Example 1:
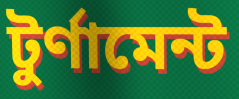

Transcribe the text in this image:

টুর্ণামেন্ট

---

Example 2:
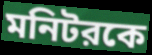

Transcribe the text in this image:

মনিটরকে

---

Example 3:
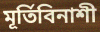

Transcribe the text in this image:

মূর্তিবিনাশী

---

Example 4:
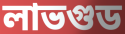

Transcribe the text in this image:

লাভগুড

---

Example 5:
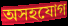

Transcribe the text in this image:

অসহযোগ